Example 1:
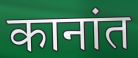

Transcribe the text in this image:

कानांत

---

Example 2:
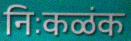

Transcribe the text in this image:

निःकळंक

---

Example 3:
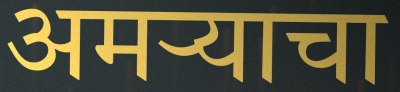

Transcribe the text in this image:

अमऱ्याचा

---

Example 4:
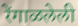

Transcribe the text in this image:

रेंगाळलेली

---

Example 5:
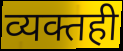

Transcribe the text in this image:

व्यक्तही